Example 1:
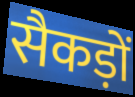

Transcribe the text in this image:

सैकड़ों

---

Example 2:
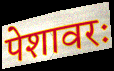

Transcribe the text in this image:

पेशावरः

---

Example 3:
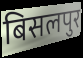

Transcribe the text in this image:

बिसलपुर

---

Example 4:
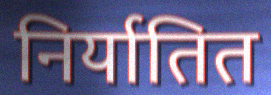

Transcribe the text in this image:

निर्यातित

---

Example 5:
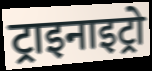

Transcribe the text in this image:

ट्राइनाइट्रो